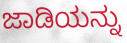
ಜಾಡಿಯನ್ನು